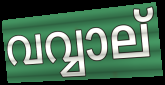
വവ്വാല്